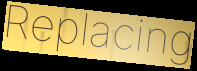
Replacing